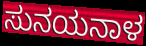
ಸುನಯನಾಳ